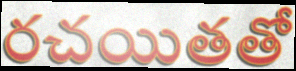
రచయితతో